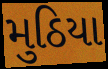
મુઠિયા